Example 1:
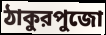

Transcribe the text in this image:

ঠাকুরপুজো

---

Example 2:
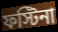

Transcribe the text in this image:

ফস্টিনা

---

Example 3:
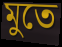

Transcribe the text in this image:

মুতে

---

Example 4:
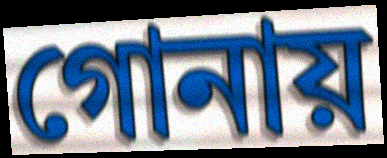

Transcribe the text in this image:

গোনায়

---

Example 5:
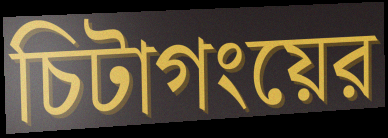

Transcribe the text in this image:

চিটাগংয়ের